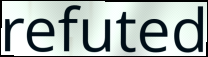
refuted